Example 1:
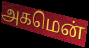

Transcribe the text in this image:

அகமென்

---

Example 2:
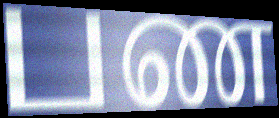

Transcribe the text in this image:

பண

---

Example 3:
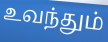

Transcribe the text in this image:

உவந்தும்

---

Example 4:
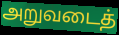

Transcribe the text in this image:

அறுவடைத்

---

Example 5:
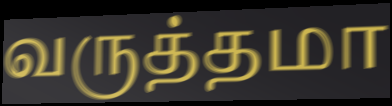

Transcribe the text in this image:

வருத்தமா